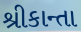
શ્રીકાન્તા